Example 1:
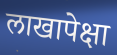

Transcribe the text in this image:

लाखापेक्षा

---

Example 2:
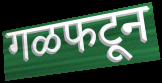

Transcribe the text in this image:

गळफटून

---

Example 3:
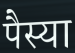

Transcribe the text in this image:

पैस्या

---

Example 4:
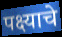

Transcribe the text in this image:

पक्ष्याचे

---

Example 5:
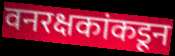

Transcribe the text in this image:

वनरक्षकांकडून